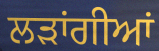
ਲੜਾਂਗੀਆਂ